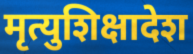
मृत्युशिक्षादेश